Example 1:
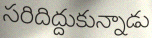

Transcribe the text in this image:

సరిదిద్దుకున్నాడు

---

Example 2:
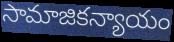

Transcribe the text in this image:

సామాజికన్యాయం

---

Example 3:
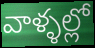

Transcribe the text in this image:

వాళ్ళల్లో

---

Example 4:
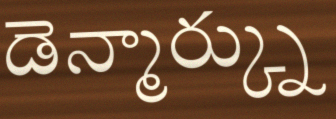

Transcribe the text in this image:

డెన్మార్క్ను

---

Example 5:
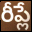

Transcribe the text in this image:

రీప్లే